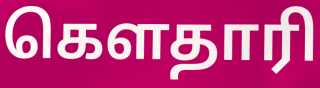
கௌதாரி